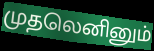
முதலெனினும்